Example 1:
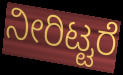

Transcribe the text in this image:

ನೀರಿಟ್ಟರೆ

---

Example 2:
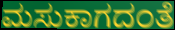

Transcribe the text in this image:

ಮಸುಕಾಗದಂತೆ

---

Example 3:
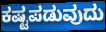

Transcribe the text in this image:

ಕಷ್ಟಪಡುವುದು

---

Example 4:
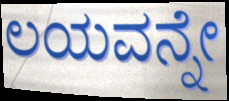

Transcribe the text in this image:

ಲಯವನ್ನೇ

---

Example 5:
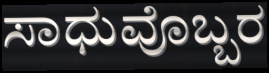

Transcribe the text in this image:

ಸಾಧುವೊಬ್ಬರ